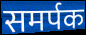
समर्पक